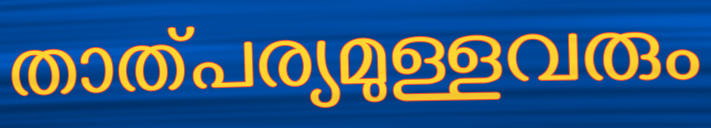
താത്പര്യമുള്ളവരും